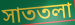
সাততলা